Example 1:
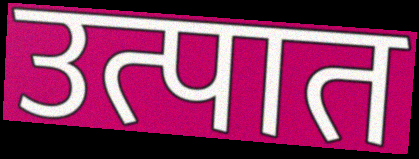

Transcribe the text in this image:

उत्पात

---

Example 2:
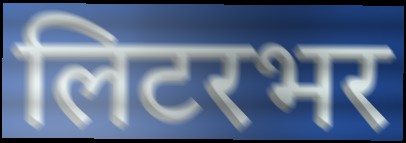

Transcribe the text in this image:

लिटरभर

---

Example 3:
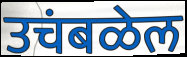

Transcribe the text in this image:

उचंबळेल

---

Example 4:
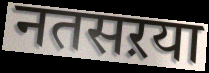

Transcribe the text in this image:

नतसऱया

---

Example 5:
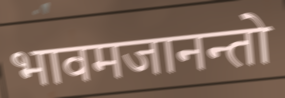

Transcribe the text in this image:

भावमजानन्तो